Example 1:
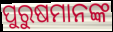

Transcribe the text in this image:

ପୁରୁଷମାନଙ୍କ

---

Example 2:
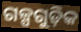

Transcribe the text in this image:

ଗଳ୍ପଗୁଡ଼ିକ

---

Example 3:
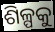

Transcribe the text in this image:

ଶିଳ୍ପକୁ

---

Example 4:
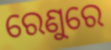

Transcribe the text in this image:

ରେଣୁରେ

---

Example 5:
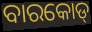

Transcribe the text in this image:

ବାରକୋଡ୍